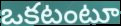
ఒకటంటూ